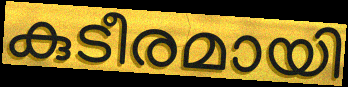
കുടീരമായി